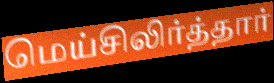
மெய்சிலிர்த்தார்